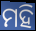
ମହି